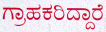
ಗ್ರಾಹಕರಿದ್ದಾರೆ